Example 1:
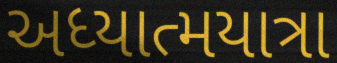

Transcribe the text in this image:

અધ્યાત્મયાત્રા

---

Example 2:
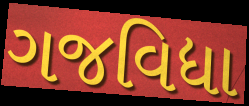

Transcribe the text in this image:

ગજવિદ્યા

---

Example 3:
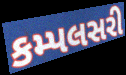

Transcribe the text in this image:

કમ્પલસરી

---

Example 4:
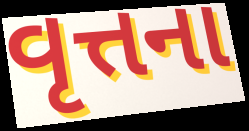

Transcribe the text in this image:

વૃત્તના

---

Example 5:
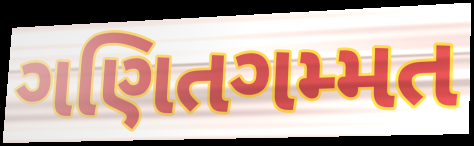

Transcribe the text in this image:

ગણિતગમ્મત